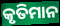
କୃତିମାନ